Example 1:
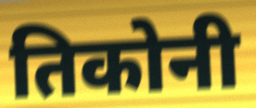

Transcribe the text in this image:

तिकोनी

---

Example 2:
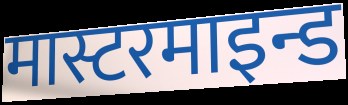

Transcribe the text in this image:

मास्टरमाइन्ड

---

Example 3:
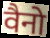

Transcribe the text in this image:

वैनो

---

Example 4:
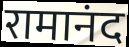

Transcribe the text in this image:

रामानंद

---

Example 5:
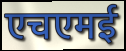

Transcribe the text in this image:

एचएमई